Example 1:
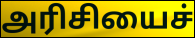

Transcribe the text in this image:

அரிசியைச்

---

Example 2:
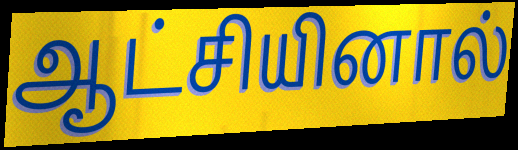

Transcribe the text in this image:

ஆட்சியினால்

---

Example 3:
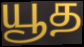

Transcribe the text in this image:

யூத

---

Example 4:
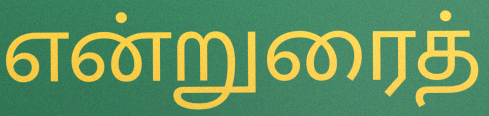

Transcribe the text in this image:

என்றுரைத்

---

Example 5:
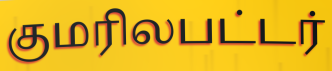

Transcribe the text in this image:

குமரிலபட்டர்